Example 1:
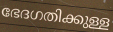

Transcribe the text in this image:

ഭേദഗതിക്കുള്ള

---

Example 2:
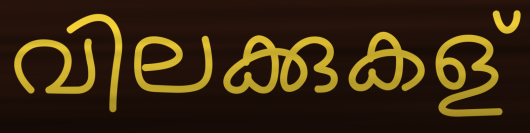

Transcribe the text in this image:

വിലക്കുകള്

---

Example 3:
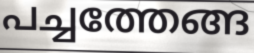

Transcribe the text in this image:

പച്ചത്തേങ്ങ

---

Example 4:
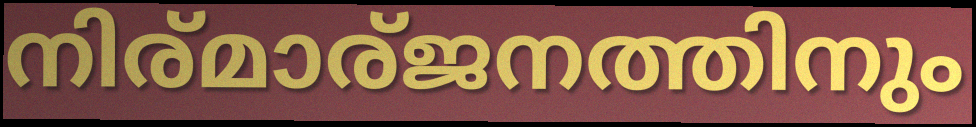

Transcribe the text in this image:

നിര്മാര്ജനത്തിനും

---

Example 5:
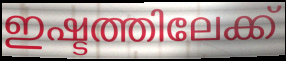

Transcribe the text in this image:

ഇഷ്ടത്തിലേക്ക്